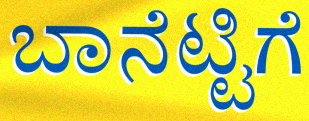
ಬಾನೆಟ್ಟಿಗೆ